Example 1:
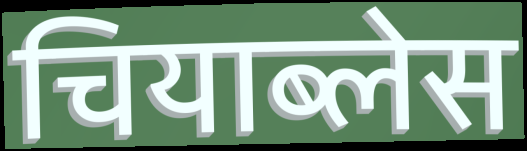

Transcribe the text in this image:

चियाब्लेस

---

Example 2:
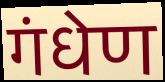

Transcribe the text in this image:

गंधेण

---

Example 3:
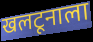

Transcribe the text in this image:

खलटूनाला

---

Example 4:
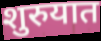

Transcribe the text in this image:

शुरुयात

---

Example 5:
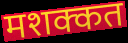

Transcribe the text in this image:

मशक्‍कत